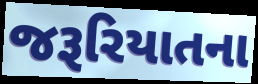
જરૂરિયાતના